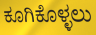
ಕೂಗಿಕೊಳ್ಳಲು